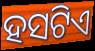
ହସଟିଏ